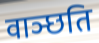
वाञ्छति